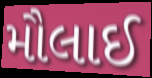
મૌલાઈ